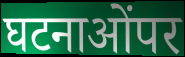
घटनाओंपर